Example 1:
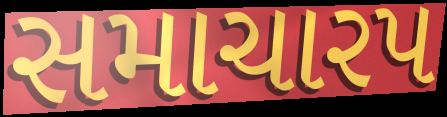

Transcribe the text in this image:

સમાચારપ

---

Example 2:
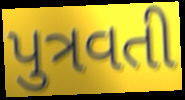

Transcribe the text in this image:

પુત્રવતી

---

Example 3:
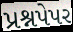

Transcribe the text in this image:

પ્રશ્નપેપર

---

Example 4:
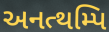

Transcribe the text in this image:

અનત્થમ્પિ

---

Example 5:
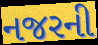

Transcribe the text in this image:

નજરની